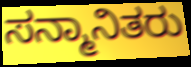
ಸನ್ಮಾನಿತರು